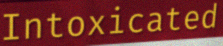
Intoxicated